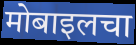
मोबाइलचा